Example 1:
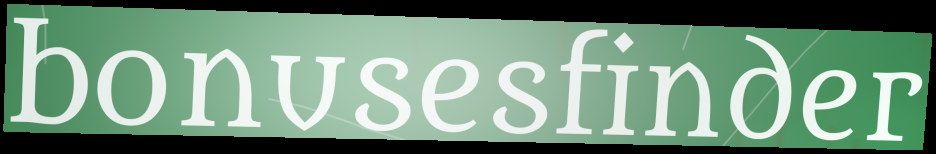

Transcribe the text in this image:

bonusesfinder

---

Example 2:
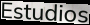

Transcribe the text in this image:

Estudios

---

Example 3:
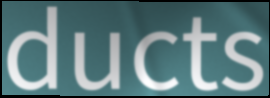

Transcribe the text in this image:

ducts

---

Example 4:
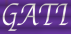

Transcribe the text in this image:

GATI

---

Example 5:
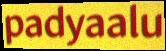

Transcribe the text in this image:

padyaalu